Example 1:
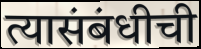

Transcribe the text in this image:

त्यासंबंधीची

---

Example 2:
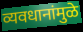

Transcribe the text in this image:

व्यवधानांमुळे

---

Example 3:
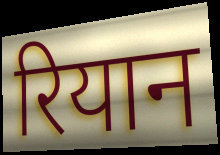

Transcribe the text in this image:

रियान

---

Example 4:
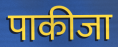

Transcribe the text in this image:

पाकीजा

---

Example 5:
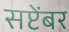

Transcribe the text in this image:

सप्टेंबर